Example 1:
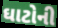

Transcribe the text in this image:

ઘાટોની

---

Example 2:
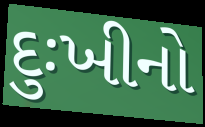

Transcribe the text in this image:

દુઃખીનો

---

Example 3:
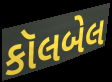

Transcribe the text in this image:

કૉલબેલ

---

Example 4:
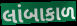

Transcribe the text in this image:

લાંબાકાળ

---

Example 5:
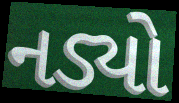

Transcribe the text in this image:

નડ્યો